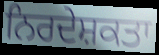
ਨਿਰਦੇਸ਼ਕਤਾ